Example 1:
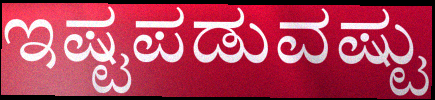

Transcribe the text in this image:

ಇಷ್ಟಪಡುವಷ್ಟು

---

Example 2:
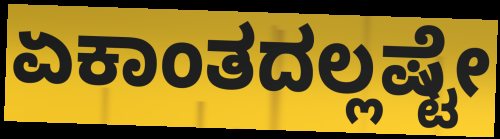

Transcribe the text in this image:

ಏಕಾಂತದಲ್ಲಷ್ಟೇ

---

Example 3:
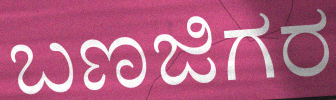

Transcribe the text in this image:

ಬಣಜಿಗರ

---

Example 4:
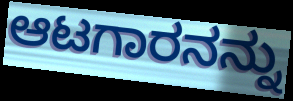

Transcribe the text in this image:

ಆಟಗಾರನನ್ನು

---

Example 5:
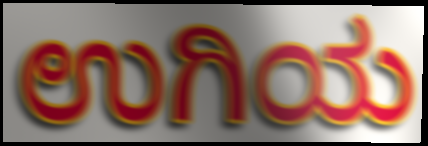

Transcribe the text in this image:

ಉಗಿಯ